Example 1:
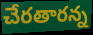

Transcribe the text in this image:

చేరతారన్న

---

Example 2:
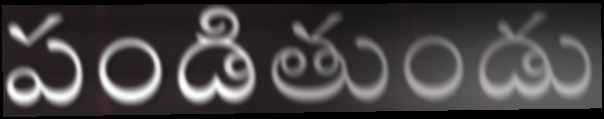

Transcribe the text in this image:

పండితుండు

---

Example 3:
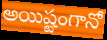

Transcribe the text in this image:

అయిష్టంగానో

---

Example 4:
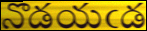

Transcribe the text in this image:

నొడయఁడ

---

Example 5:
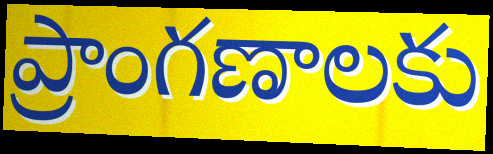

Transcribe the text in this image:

ప్రాంగణాలకు